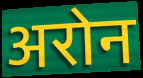
अरोन